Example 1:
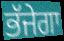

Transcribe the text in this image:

ਭੱਜੇਗਾ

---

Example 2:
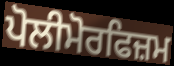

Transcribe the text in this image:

ਪੋਲੀਮੋਰਫਿਜ਼ਮ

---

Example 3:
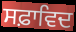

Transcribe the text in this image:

ਸਫ਼ਾਵਿਦ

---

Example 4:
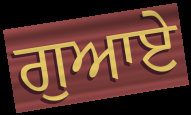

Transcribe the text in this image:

ਗੁਆਏ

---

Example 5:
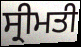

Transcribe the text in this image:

ਸ੍ਰੀਮਤੀ